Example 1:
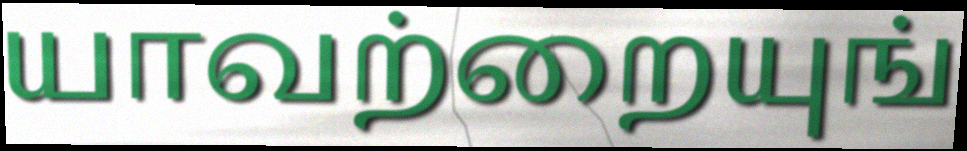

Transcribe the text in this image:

யாவற்றையுங்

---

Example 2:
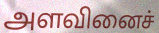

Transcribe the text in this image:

அளவினைச்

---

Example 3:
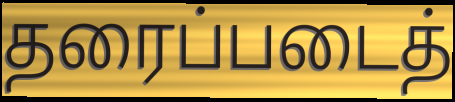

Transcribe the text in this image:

தரைப்படைத்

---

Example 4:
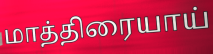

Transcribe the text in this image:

மாத்திரையாய்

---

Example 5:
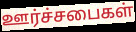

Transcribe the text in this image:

ஊர்ச்சபைகள்